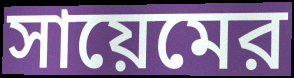
সায়েমের